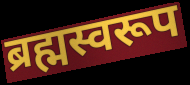
ब्रह्मस्वरूप